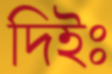
দিইঃ